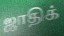
ஜாதிக்